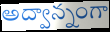
అద్వాన్నంగా